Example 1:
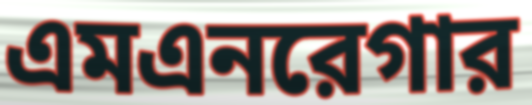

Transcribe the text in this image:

এমএনরেগার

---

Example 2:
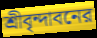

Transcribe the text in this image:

শ্রীবৃন্দাবনের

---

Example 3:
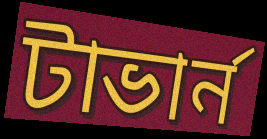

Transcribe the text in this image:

টাভার্ন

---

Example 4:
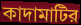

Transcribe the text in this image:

কাদামাটির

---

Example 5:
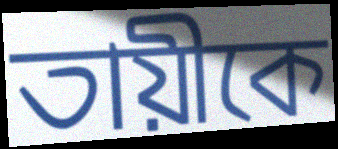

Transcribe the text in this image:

তায়ীকে